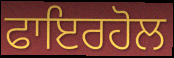
ਫਾਇਰਹੋਲ